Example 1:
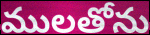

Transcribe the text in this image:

ములతోను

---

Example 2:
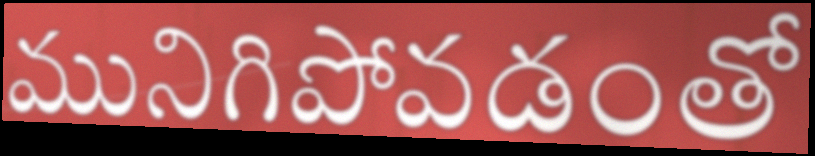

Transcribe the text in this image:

మునిగిపోవడంతో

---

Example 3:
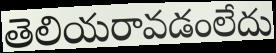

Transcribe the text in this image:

తెలియరావడంలేదు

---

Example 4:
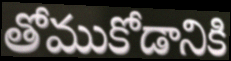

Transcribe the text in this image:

తోముకోడానికి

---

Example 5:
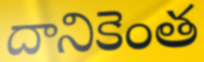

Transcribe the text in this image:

దానికెంత